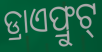
ଡ୍ରାଏଫ୍ରୁଟ୍